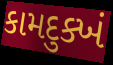
કામદુક્ખં